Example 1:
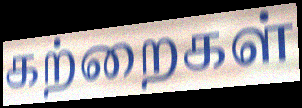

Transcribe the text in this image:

கற்றைகள்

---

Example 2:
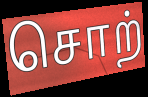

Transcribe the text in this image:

சொற்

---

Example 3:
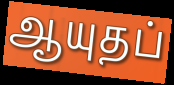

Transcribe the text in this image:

ஆயுதப்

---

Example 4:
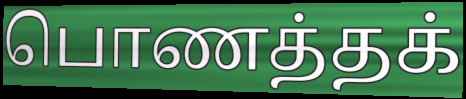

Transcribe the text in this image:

பொணத்தக்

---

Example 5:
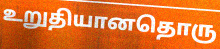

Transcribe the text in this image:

உறுதியானதொரு